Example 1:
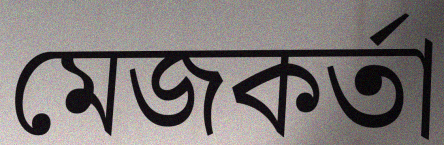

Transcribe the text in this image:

মেজকর্তা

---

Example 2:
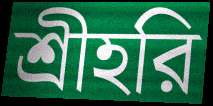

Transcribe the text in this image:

শ্রীহরি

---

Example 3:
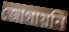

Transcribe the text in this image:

জোগায়নি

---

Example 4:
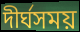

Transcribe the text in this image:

দীর্ঘসময়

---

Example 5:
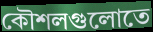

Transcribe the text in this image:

কৌশলগুলোতে